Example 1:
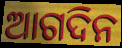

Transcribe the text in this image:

ଆଗଦିନ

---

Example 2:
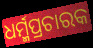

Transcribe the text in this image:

ଧର୍ମ୍ମପ୍ରଚାରକ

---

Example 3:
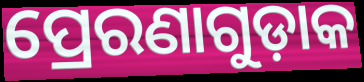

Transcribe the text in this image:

ପ୍ରେରଣାଗୁଡ଼ାକ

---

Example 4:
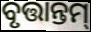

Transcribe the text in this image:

ବୃତ୍ତାନ୍ତମ୍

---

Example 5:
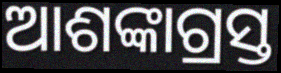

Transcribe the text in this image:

ଆଶଙ୍କାଗ୍ରସ୍ତ